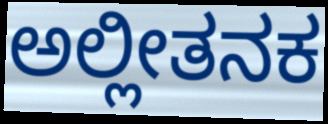
ಅಲ್ಲೀತನಕ